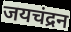
जयचंद्रन